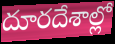
దూరదేశాల్లో